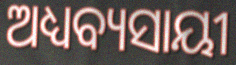
ଅଧ୍ୟବ୍ୟସାୟୀ